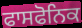
ਫਾਸਫੋਨਿਕ